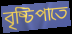
বৃষ্টিপাতে